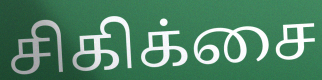
சிகிக்சை